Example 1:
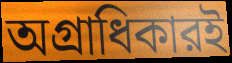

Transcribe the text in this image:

অগ্রাধিকারই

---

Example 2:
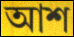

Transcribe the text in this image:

আশ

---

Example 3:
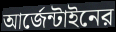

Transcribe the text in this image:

আর্জেন্টাইনের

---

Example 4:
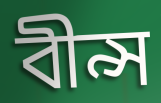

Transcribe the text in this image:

বীন্স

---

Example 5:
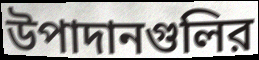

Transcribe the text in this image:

উপাদানগুলির